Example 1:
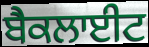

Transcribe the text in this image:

ਬੈਕਲਾਈਟ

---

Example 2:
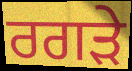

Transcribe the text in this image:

ਰਗੜੇ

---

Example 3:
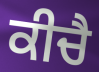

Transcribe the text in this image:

ਕੀਚੈ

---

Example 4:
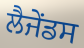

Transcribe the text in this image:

ਲੈਜੇਂਡਸ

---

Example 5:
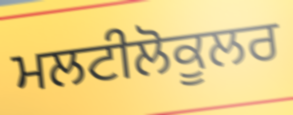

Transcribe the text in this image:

ਮਲਟੀਲੋਕੂਲਰ